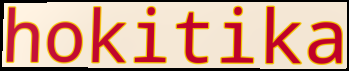
hokitika